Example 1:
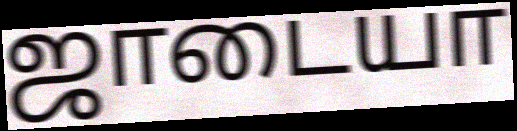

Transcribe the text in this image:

ஜாடையா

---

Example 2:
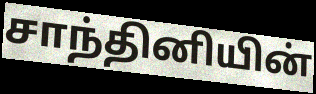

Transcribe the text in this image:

சாந்தினியின்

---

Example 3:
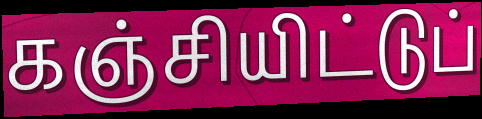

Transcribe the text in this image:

கஞ்சியிட்டுப்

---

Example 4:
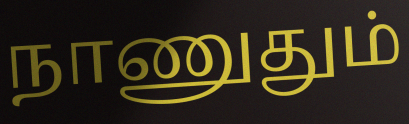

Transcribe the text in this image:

நாணுதும்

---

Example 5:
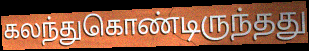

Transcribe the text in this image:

கலந்துகொண்டிருந்தது